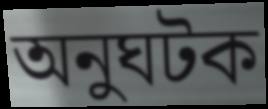
অনুঘটক